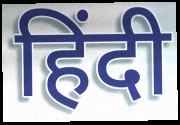
हिंदी